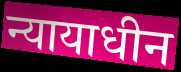
न्यायाधीन